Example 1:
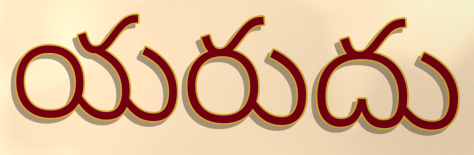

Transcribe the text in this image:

యరుదు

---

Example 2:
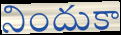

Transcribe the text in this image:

నిందుకా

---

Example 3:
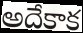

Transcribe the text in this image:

అదేకాక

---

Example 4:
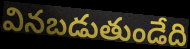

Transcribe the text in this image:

వినబడుతుండేది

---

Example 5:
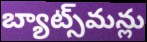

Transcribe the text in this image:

బ్యాట్స్‌మన్లు